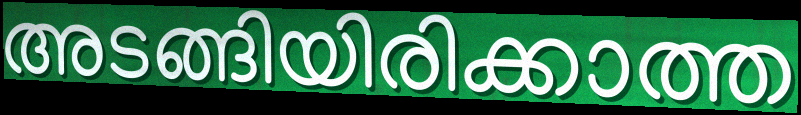
അടങ്ങിയിരിക്കാത്ത